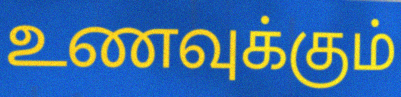
உணவுக்கும்